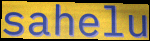
sahelu